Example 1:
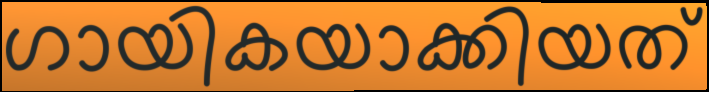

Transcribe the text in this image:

ഗായികയാക്കിയത്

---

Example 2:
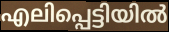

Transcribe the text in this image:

എലിപ്പെട്ടിയിൽ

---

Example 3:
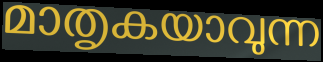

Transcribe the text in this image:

മാതൃകയാവുന്ന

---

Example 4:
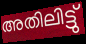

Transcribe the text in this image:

അതിലിട്ടു്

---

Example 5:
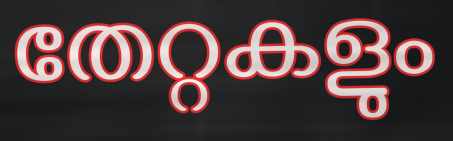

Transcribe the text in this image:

തേറ്റകളും